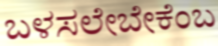
ಬಳಸಲೇಬೇಕೆಂಬ